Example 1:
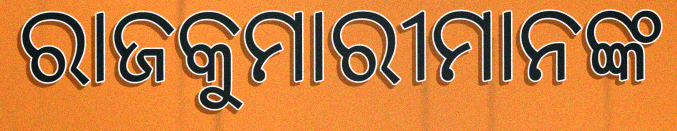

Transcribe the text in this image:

ରାଜକୁମାରୀମାନଙ୍କ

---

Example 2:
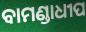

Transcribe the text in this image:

ବାମଣ୍ଡାଧୀପ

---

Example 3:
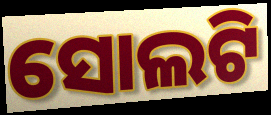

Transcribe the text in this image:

ସୋଲଟି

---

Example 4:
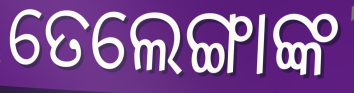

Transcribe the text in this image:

ତେଲେଙ୍ଗାଙ୍କ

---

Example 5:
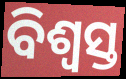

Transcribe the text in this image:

ବିଶ୍ଵସ୍ତ